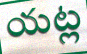
యట్ల